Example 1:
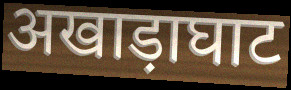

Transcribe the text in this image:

अखाड़ाघाट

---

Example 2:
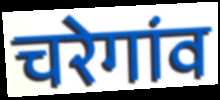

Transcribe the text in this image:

चरेगांव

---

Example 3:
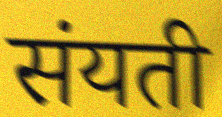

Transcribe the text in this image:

संयती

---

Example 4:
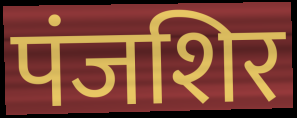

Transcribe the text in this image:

पंजशिर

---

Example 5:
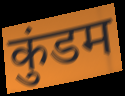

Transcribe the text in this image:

कुंडम